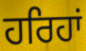
ਹਰਿਹਾਂ